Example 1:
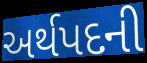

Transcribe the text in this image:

અર્થપદની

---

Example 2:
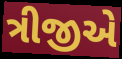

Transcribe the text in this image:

ત્રીજીએ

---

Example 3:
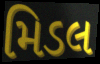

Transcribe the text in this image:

મિડલ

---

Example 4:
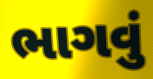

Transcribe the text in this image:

ભાગવું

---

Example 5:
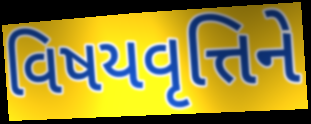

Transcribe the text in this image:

વિષયવૃત્તિને